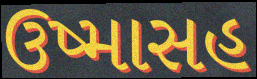
ઉષ્માસહ